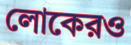
লোকেরও